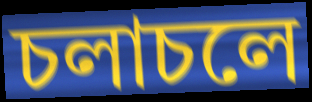
চলাচলে